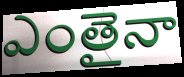
ఎంతైనా